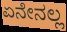
ಏನೇನಲ್ಲ